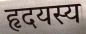
हृदयस्य